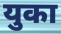
युका